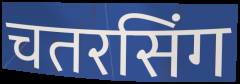
चतरसिंग